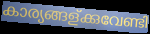
കാര്യങ്ങള്ക്കുവേണ്ടി